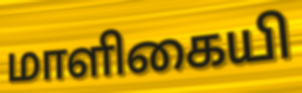
மாளிகையி